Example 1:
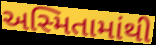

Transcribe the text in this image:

અસ્મિતામાંથી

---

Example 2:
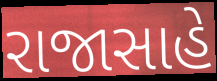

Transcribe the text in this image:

રાજાસાહે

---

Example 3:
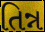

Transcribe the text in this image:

તિન્ન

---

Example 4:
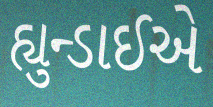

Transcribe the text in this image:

હ્યુન્ડાઈએ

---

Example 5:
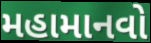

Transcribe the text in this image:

મહામાનવો